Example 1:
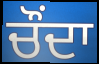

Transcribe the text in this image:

ਚੌਂਦਾ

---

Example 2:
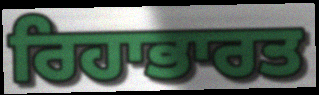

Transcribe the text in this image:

ਰਿਹਾਭਾਰਤ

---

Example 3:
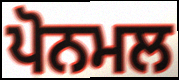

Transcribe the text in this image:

ਪੋਨਮਲ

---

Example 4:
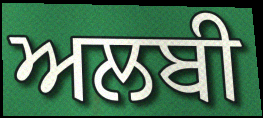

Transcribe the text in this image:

ਅਲਬੀ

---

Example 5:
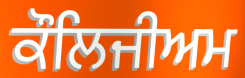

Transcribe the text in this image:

ਕੌਲਿਜੀਅਮ